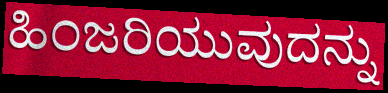
ಹಿಂಜರಿಯುವುದನ್ನು